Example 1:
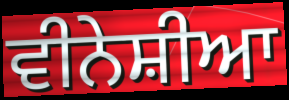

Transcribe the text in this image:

ਵੀਨੇਸ਼ੀਆ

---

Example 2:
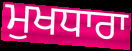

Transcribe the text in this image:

ਮੁਖਧਾਰਾ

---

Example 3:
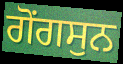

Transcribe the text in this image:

ਗੋਂਗਸੁਨ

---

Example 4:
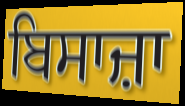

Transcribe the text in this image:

ਬਿਸਾਜ਼ਾ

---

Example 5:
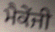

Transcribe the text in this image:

ਮੈਕੇਂਜੀ